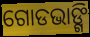
ଗୋଡଭାଙ୍ଗି